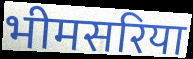
भीमसरिया